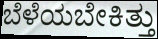
ಬೆಳೆಯಬೇಕಿತ್ತು